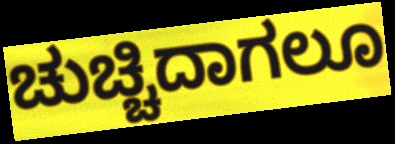
ಚುಚ್ಚಿದಾಗಲೂ